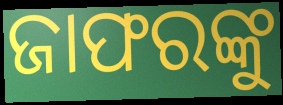
ଜାଫରଙ୍କୁ